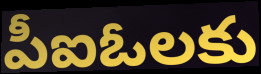
పీఐఓలకు